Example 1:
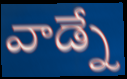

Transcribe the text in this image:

వాడ్నే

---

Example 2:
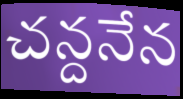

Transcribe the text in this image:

చన్దనేన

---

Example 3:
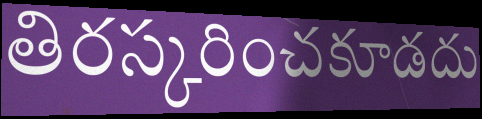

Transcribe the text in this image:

తిరస్కరించకూడదు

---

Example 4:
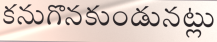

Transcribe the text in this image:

కనుగొనకుండునట్లు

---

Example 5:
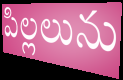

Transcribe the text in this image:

పిల్లలును